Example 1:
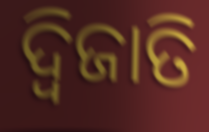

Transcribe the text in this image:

ଦ୍ୱିଜାତି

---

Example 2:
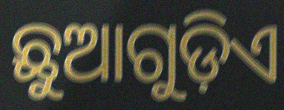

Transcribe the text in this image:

ଛୁଆଗୁଡ଼ିଏ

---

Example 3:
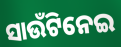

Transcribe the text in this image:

ସାଉଁଟିନେଇ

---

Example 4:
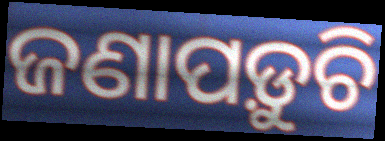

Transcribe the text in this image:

ଜଣାପଡ଼ୁଚି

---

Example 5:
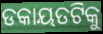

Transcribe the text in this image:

ଡକାୟତଟିକୁ